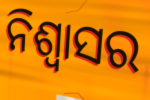
ନିଶ୍ବାସର